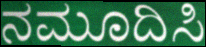
ನಮೂದಿಸಿ